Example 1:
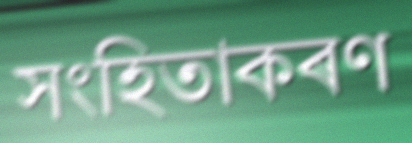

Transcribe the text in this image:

সংহিতাকৰণ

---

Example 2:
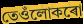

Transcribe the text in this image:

তেওঁলোকৰো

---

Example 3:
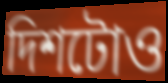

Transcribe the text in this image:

দিশটোও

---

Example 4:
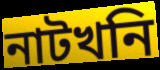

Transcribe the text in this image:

নাটখনি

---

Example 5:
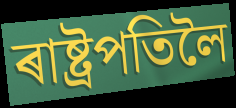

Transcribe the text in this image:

ৰাষ্ট্ৰপতিলৈ